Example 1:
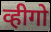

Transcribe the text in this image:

व्हीगो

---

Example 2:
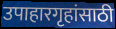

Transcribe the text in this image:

उपाहारगृहांसाठी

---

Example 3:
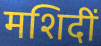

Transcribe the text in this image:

मशिदीं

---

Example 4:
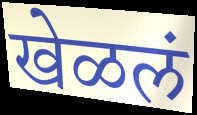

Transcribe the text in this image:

खेळलं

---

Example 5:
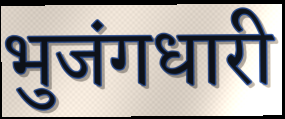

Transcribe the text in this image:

भुजंगधारी